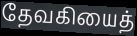
தேவகியைத்